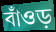
বাঁওড়